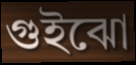
গুইঝো